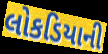
લોકડિયાની